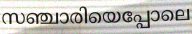
സഞ്ചാരിയെപ്പോലെ